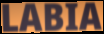
LABIA